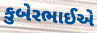
કુબેરભાઈએ